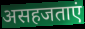
असहजताएं